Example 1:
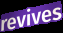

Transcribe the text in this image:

revives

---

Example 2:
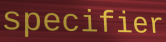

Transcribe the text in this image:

specifier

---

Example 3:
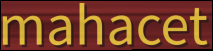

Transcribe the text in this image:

mahacet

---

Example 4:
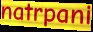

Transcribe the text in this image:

natrpani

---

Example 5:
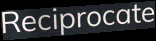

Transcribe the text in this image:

Reciprocate